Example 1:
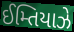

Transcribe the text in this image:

ઈમ્તિયાઝે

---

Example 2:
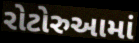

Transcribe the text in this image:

રોટોરુઆમાં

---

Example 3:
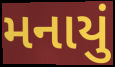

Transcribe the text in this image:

મનાયું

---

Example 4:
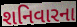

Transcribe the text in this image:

શનિવારના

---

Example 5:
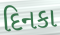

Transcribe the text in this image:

દિનકા